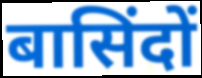
बासिंदों